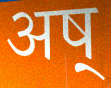
अष्